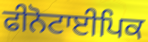
ਫੀਨੋਟਾਈਪਿਕ